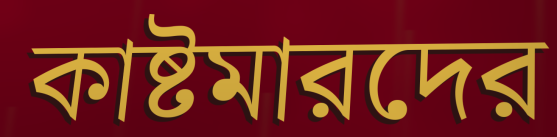
কাষ্টমারদের